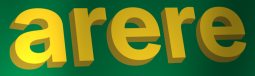
arere